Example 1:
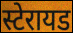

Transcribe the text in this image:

स्टेरायड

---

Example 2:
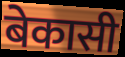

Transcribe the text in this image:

बेकासी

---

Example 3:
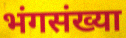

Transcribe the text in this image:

भंगसंख्या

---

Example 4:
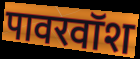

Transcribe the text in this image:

पावरवॉश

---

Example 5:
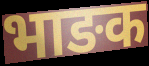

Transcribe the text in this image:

भाङक